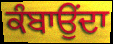
ਕੰਬਾਉਂਦਾ